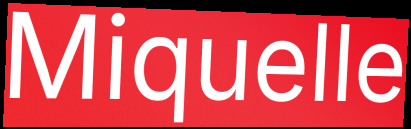
Miquelle